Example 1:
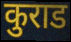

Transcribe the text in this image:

कुराड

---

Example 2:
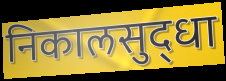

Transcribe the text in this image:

निकालसुद्धा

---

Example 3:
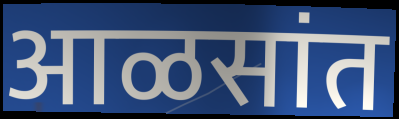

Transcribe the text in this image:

आळसांत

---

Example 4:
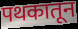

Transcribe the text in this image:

पथकातून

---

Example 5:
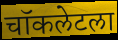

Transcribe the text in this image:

चॉकलेटला